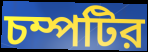
চম্পটির